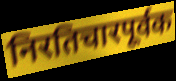
निरतिचारपूर्वक